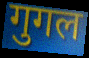
गुगल